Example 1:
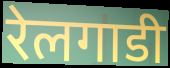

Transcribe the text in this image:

रेलगाडी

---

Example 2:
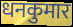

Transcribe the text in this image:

धनकुमार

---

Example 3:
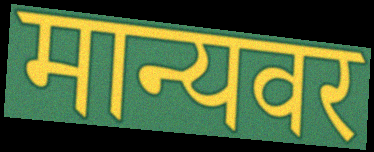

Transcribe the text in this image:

मान्यवर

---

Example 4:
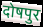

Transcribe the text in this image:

दोषपुर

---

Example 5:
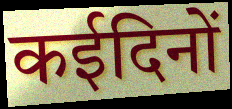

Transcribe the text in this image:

कईदिनों